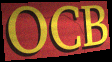
OCB